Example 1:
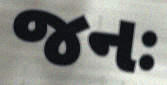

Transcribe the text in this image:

જનઃ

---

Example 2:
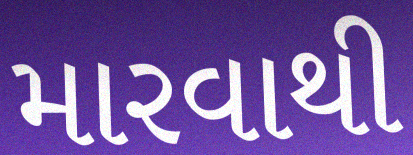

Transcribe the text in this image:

મારવાથી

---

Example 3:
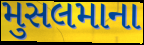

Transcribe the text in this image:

મુસલમાના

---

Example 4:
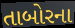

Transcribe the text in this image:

તાબોરના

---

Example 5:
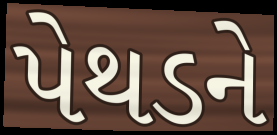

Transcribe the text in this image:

પેથડને